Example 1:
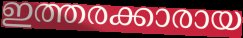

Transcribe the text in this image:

ഇത്തരക്കാരായ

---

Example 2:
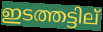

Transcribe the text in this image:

ഇടത്തട്ടില്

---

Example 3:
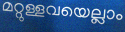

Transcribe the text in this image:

മറ്റുള്ളവയെല്ലാം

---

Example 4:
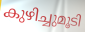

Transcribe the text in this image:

കുഴിച്ചുമൂടി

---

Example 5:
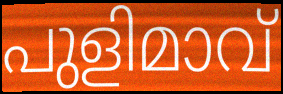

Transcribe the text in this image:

പുളിമാവ്